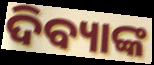
ଦିବ୍ୟାଙ୍କ